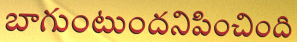
బాగుంటుందనిపించింది